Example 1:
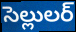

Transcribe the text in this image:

సెల్లులర్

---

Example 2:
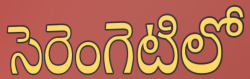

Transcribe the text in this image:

సెరెంగెటిలో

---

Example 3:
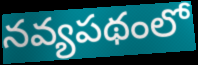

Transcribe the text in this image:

నవ్యపథంలో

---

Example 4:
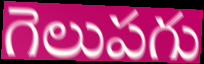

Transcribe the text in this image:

గెలుపగు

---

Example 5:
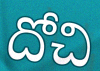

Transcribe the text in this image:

దోచి